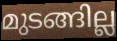
മുടങ്ങില്ല